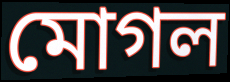
মোগল